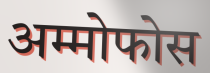
अम्मोफोस